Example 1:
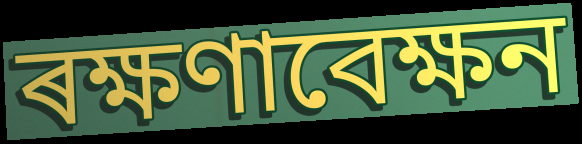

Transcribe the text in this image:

ৰক্ষণাবেক্ষন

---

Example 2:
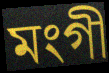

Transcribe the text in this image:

মংগী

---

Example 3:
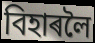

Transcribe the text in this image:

বিহাৰলৈ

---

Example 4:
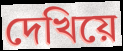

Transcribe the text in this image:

দেখিয়ে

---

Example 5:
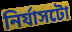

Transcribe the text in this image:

নিৰ্যাসটো